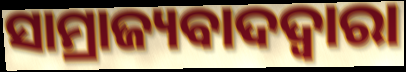
ସାମ୍ରାଜ୍ୟବାଦଦ୍ୱାରା